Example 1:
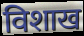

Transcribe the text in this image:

विशाख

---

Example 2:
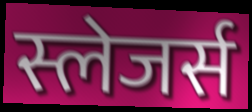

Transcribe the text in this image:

स्लेजर्स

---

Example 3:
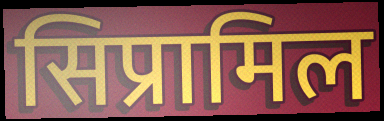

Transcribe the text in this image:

सिप्रामिल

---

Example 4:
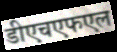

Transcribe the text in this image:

डीएचएफएल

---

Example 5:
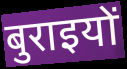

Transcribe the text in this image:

बुराइयों